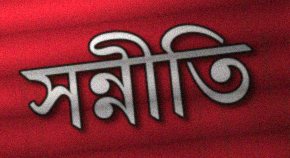
সন্নীতি